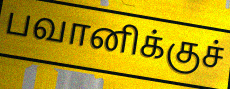
பவானிக்குச்